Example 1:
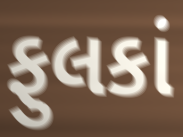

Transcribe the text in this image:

ફુલકાં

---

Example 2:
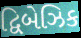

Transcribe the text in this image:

દ્વિબેઝિક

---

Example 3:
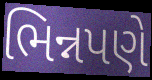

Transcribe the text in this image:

ભિન્નપણે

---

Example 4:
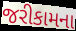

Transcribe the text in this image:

જરીકામના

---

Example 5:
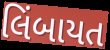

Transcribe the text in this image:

લિંબાયત